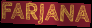
FARJANA